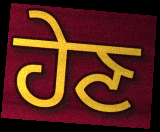
ਹੇਣ